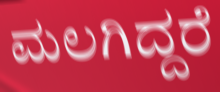
ಮಲಗಿದ್ದರೆ